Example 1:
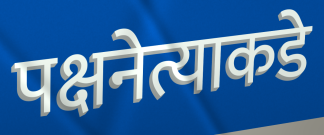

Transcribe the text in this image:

पक्षनेत्याकडे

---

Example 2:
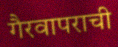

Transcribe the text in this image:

गैरवापराची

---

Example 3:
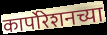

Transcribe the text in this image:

कार्पोरेशनच्या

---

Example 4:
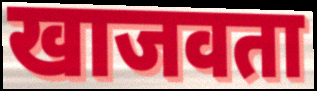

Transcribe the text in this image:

खाजवता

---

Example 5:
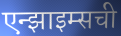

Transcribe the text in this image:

एन्झाइम्सची